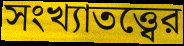
সংখ্যাতত্ত্বের